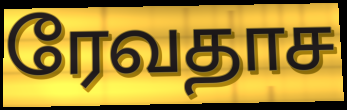
ரேவதாச